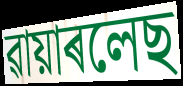
ৱায়াৰলেছ